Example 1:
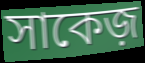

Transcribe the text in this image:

সাকেজ়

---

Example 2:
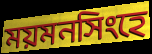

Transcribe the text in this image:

ময়মনসিংহে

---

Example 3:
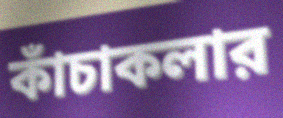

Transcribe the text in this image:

কাঁচাকলার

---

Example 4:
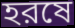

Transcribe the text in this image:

হরষে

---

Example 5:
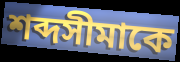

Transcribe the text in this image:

শব্দসীমাকে